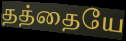
தத்தையே